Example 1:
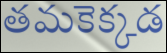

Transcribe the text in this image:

తమకెక్కడ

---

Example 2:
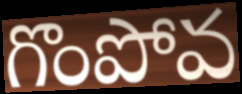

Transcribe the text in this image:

గొంపోవ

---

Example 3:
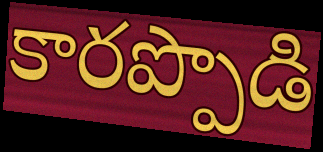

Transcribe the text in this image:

కారప్పొడి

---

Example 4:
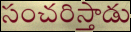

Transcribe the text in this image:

సంచరిస్తాడు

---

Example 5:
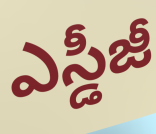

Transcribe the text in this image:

ఎస్డీజీ